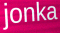
jonka